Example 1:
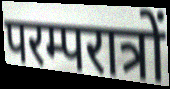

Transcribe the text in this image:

परम्परात्रों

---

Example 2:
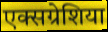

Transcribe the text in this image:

एक्सग्रेशिया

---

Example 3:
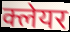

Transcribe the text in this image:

क्लेयर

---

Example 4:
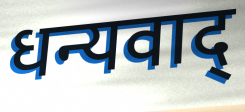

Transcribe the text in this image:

धन्यवाद्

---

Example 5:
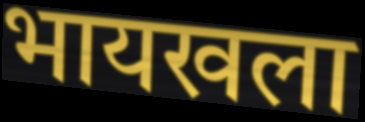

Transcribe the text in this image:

भायखला